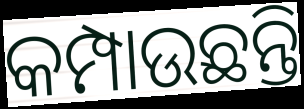
କମ୍ପାଉଛନ୍ତି